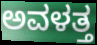
ಅವಳತ್ತ